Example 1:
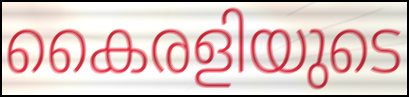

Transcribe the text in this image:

കൈരളിയുടെ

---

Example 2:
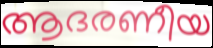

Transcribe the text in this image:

ആദരണീയ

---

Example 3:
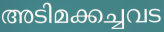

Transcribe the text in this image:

അടിമക്കച്ചവട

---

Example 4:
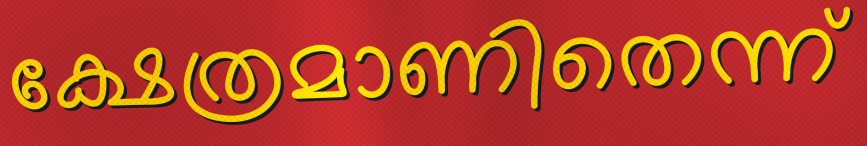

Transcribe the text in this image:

ക്ഷേത്രമാണിതെന്ന്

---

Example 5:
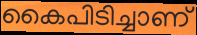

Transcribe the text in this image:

കൈപിടിച്ചാണ്